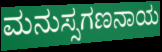
ಮನುಸ್ಸಗಣನಾಯ